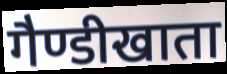
गैण्डीखाता